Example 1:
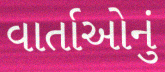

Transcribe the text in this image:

વાર્તાઓનું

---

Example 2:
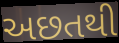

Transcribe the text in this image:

અછતથી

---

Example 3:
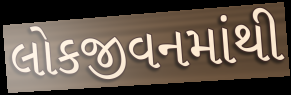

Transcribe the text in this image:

લોકજીવનમાંથી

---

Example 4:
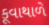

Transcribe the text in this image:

કૂવાથાળે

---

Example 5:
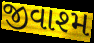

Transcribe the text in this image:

જીવાશ્મ